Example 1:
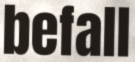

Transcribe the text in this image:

befall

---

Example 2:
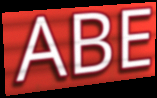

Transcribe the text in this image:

ABE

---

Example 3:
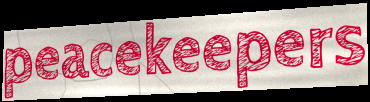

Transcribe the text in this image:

peacekeepers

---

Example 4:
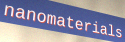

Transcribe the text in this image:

nanomaterials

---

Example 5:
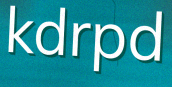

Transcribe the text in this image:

kdrpd